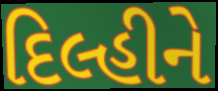
દિલ્હીને